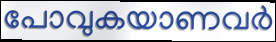
പോവുകയാണവർ